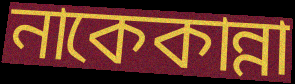
নাকেকান্না